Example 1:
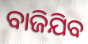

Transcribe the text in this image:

ବାଜିଯିବ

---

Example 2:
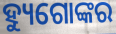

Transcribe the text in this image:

ହ୍ୟୁଗୋଙ୍କର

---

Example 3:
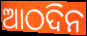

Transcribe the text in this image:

ଆଠଦିନ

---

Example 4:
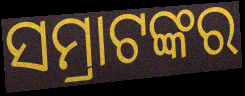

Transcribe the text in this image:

ସମ୍ରାଟଙ୍କର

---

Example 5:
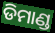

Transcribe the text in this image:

ଡିମାଣ୍ଡ